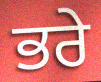
ਭਰੇ